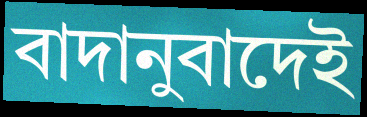
বাদানুবাদেই